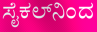
ಸೈಕಲ್‌ನಿಂದ